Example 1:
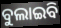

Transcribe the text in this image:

ବୁଲାଇବି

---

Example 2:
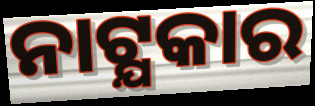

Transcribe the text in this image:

ନାଟ୍ଯକାର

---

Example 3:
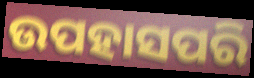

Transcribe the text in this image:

ଉପହାସପରି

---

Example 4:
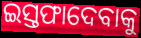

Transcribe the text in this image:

ଇସ୍ତଫାଦେବାକୁ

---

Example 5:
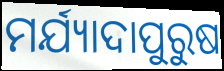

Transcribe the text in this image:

ମର୍ଯ୍ୟାଦାପୁରୁଷ